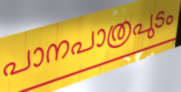
പാനപാത്രപുടം